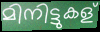
മിനിട്ടുകള്